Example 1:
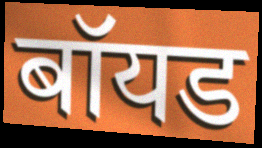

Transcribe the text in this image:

बॉयड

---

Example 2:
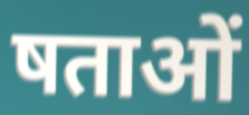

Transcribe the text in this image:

षताओं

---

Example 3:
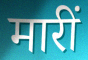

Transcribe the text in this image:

मारीं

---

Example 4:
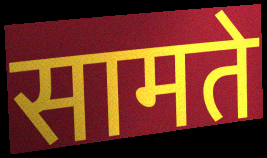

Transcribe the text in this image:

सामते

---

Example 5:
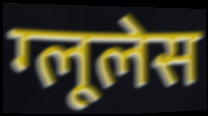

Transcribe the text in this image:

ग्लूलेस